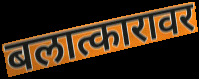
बलात्कारावर